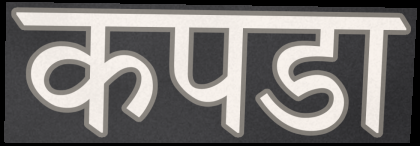
कपडा